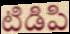
టిడిపి